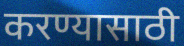
करण्यासाठी